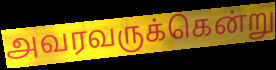
அவரவருக்கென்று